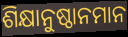
ଶିକ୍ଷାନୁଷ୍ଠାନମାନ